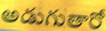
అడుగుతారో